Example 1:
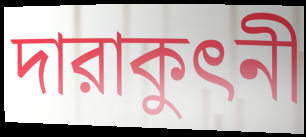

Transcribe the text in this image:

দারাকুৎনী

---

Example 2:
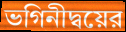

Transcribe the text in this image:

ভগিনীদ্বয়ের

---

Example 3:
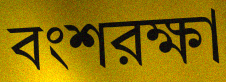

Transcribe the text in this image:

বংশরক্ষা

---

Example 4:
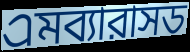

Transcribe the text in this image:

এমব্যারাসড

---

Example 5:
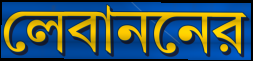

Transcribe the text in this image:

লেবাননের